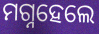
ମଗ୍ନହେଲେ